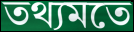
তথ্যমতে